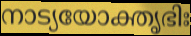
നാട്യയോക്തൃഭിഃ